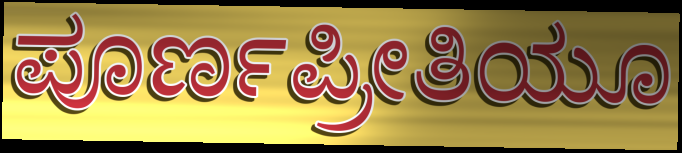
ಪೂರ್ಣಪ್ರೀತಿಯೂ